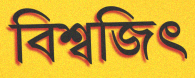
বিশ্বজিৎ